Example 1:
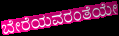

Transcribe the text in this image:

ಬೇರೆಯವರಂತೆಯೇ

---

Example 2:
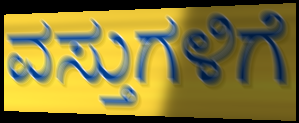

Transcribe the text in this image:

ವಸ್ತುಗಳಿಗೆ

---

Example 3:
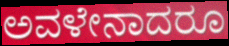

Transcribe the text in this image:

ಅವಳೇನಾದರೂ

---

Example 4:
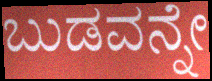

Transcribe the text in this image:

ಬುಡವನ್ನೇ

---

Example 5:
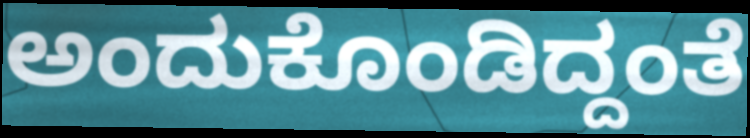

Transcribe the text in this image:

ಅಂದುಕೊಂಡಿದ್ದಂತೆ